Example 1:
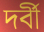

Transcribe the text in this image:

দর্বী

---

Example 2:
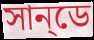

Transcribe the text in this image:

সান্‌ডে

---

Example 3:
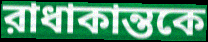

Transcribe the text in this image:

রাধাকান্তকে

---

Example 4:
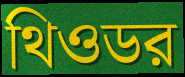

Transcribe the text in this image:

থিওডর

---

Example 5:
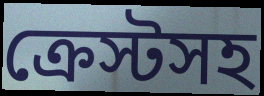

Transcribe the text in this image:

ক্রেস্টসহ